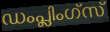
ഡംപ്ലിംഗ്സ്